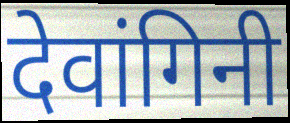
देवांगिनी